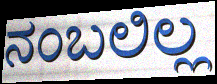
ನಂಬಲಿಲ್ಲ